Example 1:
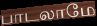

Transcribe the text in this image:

பாடலாமே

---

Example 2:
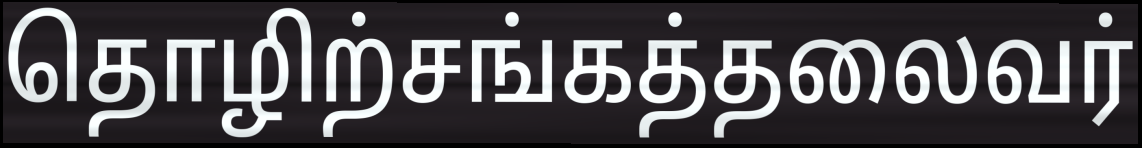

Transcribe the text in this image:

தொழிற்சங்கத்தலைவர்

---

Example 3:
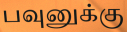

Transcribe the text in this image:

பவுனுக்கு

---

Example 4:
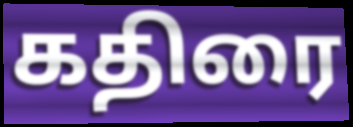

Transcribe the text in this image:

கதிரை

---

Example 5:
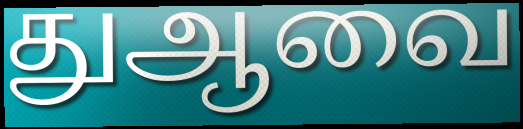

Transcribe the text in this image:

துஆவை